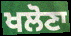
ਖਲੋਣਾ